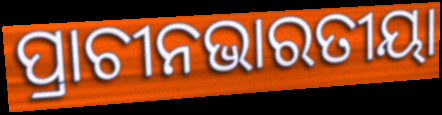
ପ୍ରାଚୀନଭାରତୀୟା